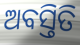
ଅବସ୍ତିତି